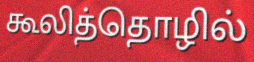
கூலித்தொழில்